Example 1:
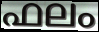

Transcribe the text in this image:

ഫലം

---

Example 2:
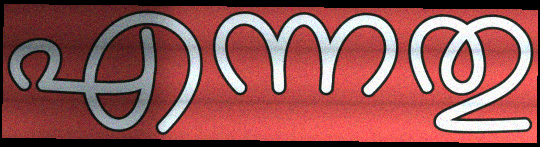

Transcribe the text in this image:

എന്നതു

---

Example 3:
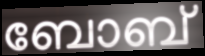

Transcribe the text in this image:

ബോബ്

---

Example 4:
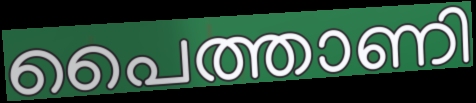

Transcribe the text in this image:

പൈത്താണി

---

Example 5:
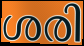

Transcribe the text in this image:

ശരി